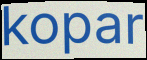
kopar